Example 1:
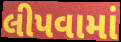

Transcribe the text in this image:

લીપવામાં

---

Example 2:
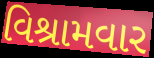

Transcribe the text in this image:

વિશ્રામવાર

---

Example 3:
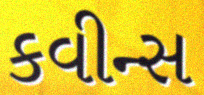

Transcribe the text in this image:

કવીન્સ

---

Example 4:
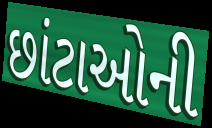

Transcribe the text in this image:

છાંટાઓની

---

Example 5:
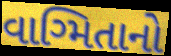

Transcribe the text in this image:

વાગ્મિતાનો